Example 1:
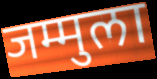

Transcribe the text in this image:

जम्मुला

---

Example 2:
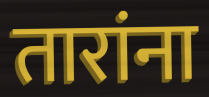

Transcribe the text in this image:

तारांना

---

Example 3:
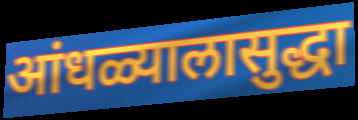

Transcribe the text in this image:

आंधळ्यालासुद्धा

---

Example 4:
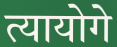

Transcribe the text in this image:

त्यायोगे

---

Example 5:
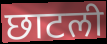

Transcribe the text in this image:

छाटली